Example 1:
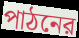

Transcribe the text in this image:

পাঠনের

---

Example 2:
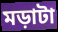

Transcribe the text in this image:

মড়াটা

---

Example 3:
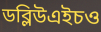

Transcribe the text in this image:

ডব্লিউএইচও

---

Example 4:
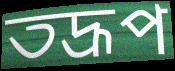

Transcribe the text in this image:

তদ্রূপ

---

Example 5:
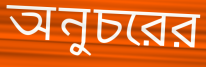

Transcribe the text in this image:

অনুচরের